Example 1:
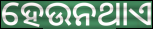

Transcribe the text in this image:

ହେଉନଥାଏ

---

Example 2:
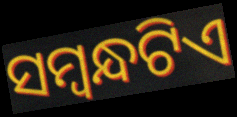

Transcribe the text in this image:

ସମ୍ବନ୍ଧଟିଏ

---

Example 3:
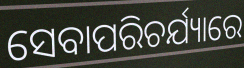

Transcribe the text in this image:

ସେବାପରିଚର୍ଯ୍ୟାରେ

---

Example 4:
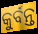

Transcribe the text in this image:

କୁର୍ବନ୍ତ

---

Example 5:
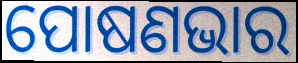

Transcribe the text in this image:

ପୋଷଣଭାର